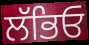
ਲੱਭਿਓ